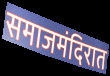
समाजमंदिरात